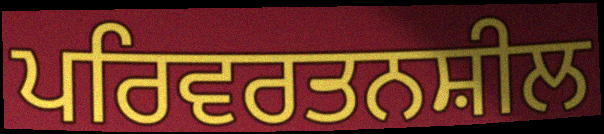
ਪਰਿਵਰਤਨਸ਼ੀਲ